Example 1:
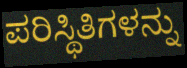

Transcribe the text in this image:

ಪರಿಸ್ಥಿತಿಗಳನ್ನು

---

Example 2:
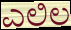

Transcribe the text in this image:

ಎಲಿಲ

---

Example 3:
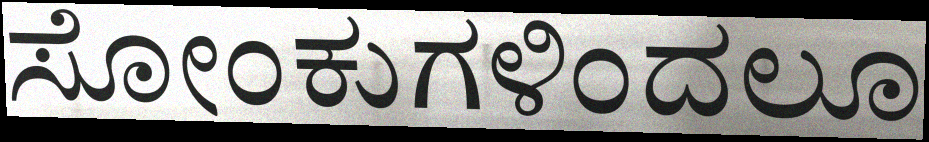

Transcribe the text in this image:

ಸೋಂಕುಗಳಿಂದಲೂ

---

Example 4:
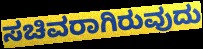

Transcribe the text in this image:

ಸಚಿವರಾಗಿರುವುದು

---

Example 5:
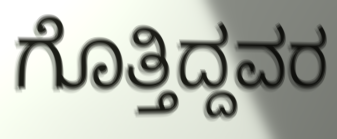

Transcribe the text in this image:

ಗೊತ್ತಿದ್ದವರ